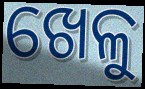
ଖେଳୁ